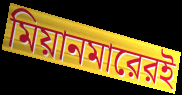
মিয়ানমারেরই